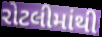
રોટલીમાંથી